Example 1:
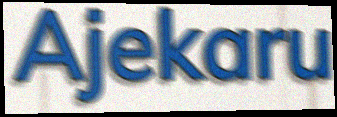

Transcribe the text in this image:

Ajekaru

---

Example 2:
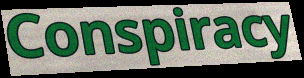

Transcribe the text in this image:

Conspiracy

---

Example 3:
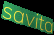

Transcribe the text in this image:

savita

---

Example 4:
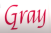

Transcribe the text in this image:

Gray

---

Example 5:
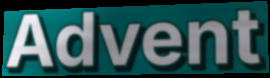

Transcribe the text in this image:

Advent